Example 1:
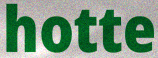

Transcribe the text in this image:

hotte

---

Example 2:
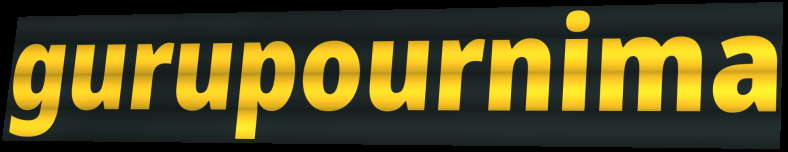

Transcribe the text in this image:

gurupournima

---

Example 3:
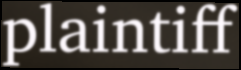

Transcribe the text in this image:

plaintiff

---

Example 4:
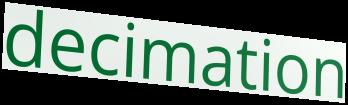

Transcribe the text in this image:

decimation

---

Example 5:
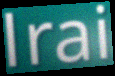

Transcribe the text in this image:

Irai